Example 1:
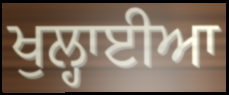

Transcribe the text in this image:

ਖੁਲ੍ਹਾਈਆ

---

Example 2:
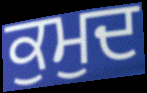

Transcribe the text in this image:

ਕੁਮੁਦ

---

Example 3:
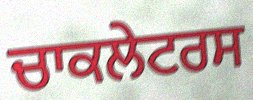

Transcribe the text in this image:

ਚਾਕਲੇਟਰਸ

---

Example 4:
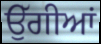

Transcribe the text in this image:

ਉੱਗੀਆਂ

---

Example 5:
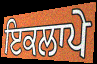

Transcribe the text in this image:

ਇਕਲਾਪੇ